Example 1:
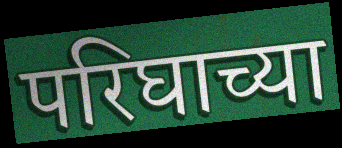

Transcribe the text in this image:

परिघाच्या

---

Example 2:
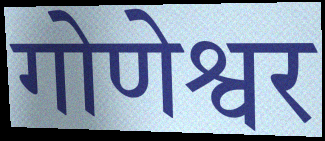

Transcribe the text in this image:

गोणेश्वर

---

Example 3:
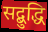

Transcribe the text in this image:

सद्बुद्धि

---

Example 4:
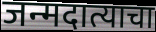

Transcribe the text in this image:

जन्मदात्याचा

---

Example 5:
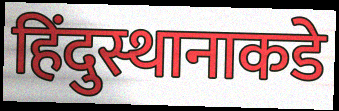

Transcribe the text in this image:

हिंदुस्थानाकडे